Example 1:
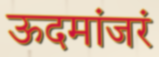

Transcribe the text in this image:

ऊदमांजरं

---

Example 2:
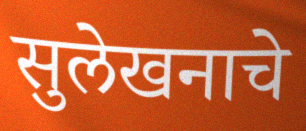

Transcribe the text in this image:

सुलेखनाचे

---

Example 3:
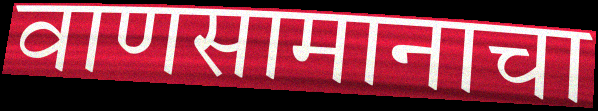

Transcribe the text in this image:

वाणसामानाचा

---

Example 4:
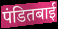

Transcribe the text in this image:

पंडितबाई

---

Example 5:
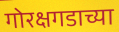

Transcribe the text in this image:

गोरक्षगडाच्या